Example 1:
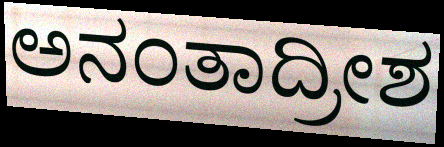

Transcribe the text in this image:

ಅನಂತಾದ್ರೀಶ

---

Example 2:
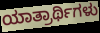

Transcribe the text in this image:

ಯಾತ್ರಾರ್ಥಿಗಳು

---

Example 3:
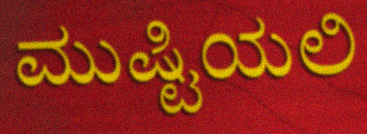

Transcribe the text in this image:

ಮುಷ್ಟಿಯಲಿ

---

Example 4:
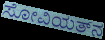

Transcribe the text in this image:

ಸೋವಿಯತ್‌ನ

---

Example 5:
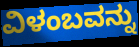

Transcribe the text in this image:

ವಿಳಂಬವನ್ನು